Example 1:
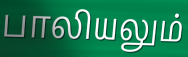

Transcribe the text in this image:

பாலியலும்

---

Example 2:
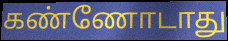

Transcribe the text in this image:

கண்ணோடாது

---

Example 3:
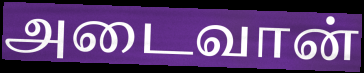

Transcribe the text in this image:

அடைவான்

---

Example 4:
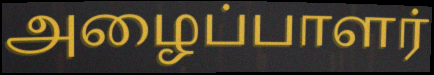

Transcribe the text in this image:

அழைப்பாளர்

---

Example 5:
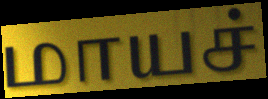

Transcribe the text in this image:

மாயச்